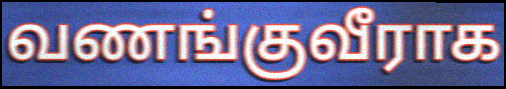
வணங்குவீராக